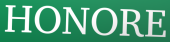
HONORE